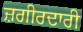
ਜ਼ਗੀਰਦਾਰੀ